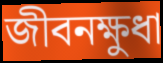
জীবনক্ষুধা